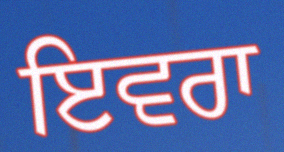
ਇਵਰਾ